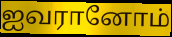
ஐவரானோம்